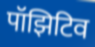
पॉझिटिव